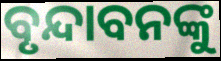
ବୃନ୍ଦାବନଙ୍କୁ